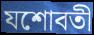
যশোবতী